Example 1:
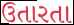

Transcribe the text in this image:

ઉતારતા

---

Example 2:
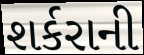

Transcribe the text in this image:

શર્કરાની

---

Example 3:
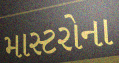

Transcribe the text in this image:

માસ્ટરોના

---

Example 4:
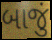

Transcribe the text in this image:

બાજું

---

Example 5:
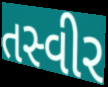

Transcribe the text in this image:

તસ્વીર